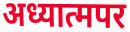
अध्यात्मपर